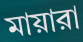
মায়ারা